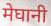
मेघानी